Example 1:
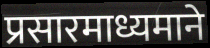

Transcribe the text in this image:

प्रसारमाध्यमाने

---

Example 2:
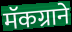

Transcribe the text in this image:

मॅकग्राने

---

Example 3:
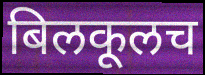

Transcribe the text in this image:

बिलकूलच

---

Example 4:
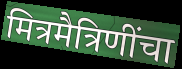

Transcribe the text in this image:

मित्रमैत्रिणींचा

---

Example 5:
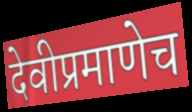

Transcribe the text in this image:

देवीप्रमाणेच